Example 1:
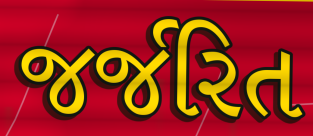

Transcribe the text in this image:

જર્જરિત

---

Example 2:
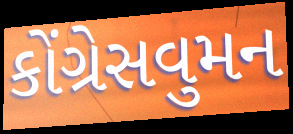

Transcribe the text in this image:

કોંગ્રેસવુમન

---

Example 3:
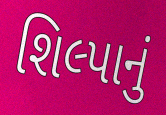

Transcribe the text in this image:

શિલ્પાનું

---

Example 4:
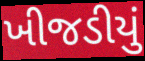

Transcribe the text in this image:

ખીજડીયું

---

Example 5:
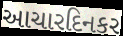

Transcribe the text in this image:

આચારદિનકર